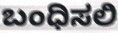
ಬಂಧಿಸಲಿ